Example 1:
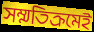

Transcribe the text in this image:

সম্মতিক্রমেই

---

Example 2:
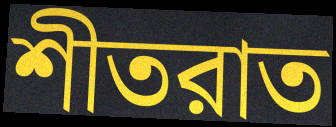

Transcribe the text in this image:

শীতরাত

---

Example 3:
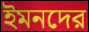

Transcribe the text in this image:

ইমনদের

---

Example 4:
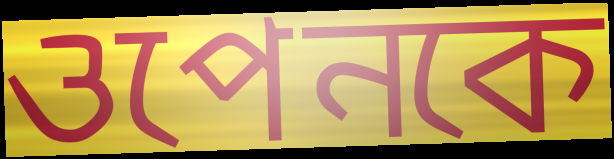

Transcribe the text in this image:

ওপেনকে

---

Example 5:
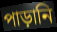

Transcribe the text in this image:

পাড়ানি